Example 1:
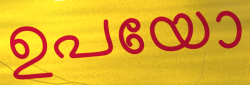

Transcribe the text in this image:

ഉപയോ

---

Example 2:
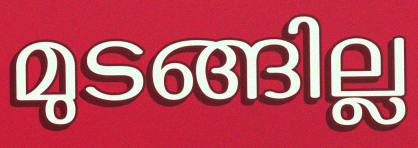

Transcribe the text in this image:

മുടങ്ങില്ല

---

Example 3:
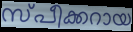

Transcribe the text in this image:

സ്പീക്കറായ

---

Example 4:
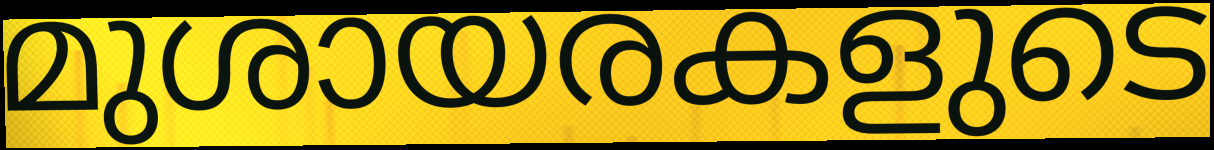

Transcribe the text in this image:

മുശായരകളുടെ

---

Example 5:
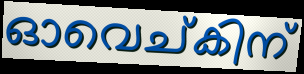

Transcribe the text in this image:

ഓവെച്കിന്